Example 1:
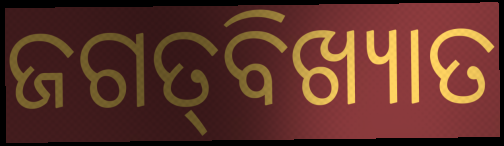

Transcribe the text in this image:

ଜଗତ୍‌ବିଖ୍ୟାତ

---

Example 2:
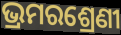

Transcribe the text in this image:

ଭ୍ରମରଶ୍ରେଣୀ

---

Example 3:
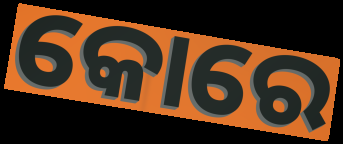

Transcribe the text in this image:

କୋରେ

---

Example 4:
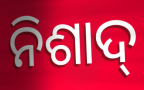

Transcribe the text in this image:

ନିଶାଦ୍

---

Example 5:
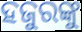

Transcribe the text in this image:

ହଜୁରଙ୍କୁ